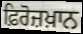
ਫ਼ਿਰੋਜ਼ਖ਼ਾਨ